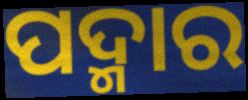
ପଦ୍ମାର